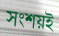
সংশয়ই